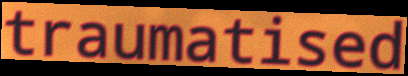
traumatised